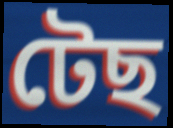
টেছ